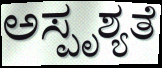
ಅಸ್ಪೃಶ್ಯತೆ